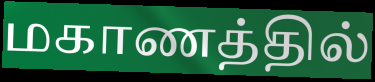
மகாணத்தில்